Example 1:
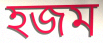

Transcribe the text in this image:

হজম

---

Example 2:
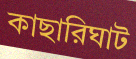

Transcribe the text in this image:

কাছারিঘাট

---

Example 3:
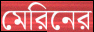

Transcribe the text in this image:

মেরিনের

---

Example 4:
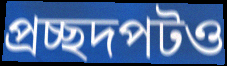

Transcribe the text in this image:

প্রচ্ছদপটও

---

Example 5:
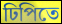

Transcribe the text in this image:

ঢিপিতে